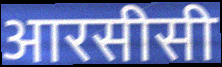
आरसीसी